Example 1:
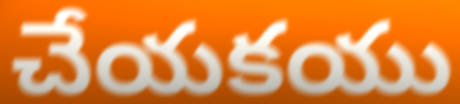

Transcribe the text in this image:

చేయకయు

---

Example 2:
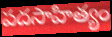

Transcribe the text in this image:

పదసాహిత్యం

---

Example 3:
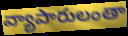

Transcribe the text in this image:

వ్యాపారులంతా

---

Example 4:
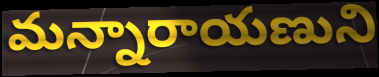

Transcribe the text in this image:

మన్నారాయణుని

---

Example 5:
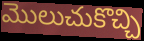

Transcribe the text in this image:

మొలుచుకొచ్చి